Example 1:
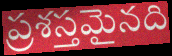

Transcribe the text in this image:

ప్రశస్తమైనది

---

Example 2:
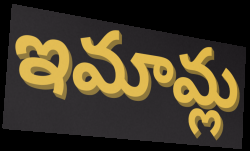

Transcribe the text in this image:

ఇమామ్ల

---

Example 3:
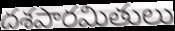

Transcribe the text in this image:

దశపారమితులు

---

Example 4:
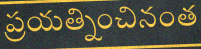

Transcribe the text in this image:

ప్రయత్నించినంత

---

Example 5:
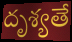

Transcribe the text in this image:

దృశ్యతే